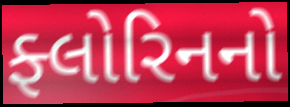
ફ્લોરિનનો